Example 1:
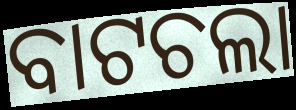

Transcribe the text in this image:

ବାଟଚଲା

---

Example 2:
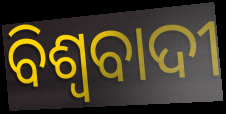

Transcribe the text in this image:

ବିଶ୍ଵବାଦୀ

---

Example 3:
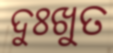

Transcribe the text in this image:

ଦୁଃଖୁତ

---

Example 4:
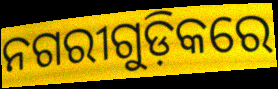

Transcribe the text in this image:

ନଗରୀଗୁଡ଼ିକରେ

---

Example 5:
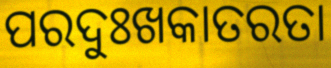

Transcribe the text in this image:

ପରଦୁଃଖକାତରତା